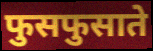
फुसफुसाते